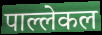
पाल्लेकल